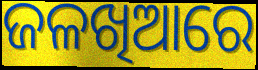
ଜଳଖିଆରେ